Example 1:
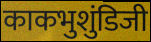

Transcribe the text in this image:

काकभुशुंडिजी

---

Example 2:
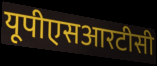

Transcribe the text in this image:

यूपीएसआरटीसी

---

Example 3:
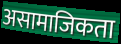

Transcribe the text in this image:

असामाजिकता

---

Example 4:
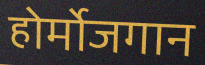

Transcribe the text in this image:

होर्मोजगान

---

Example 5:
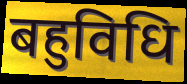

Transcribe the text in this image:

बहुविधि